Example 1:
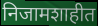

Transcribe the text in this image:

निजामशाहीत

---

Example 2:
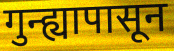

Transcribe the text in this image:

गुन्ह्यापासून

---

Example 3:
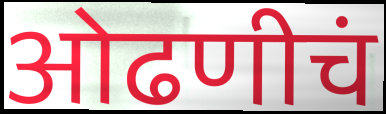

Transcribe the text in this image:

ओढणीचं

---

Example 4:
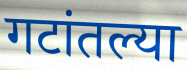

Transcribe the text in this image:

गटांतल्या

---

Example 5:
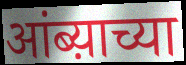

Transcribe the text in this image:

आंब्य़ाच्या